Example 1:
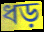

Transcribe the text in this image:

ধড়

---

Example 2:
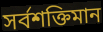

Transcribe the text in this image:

সর্বশক্তিমান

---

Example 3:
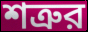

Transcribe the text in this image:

শত্রুর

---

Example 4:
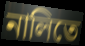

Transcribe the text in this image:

নালিতে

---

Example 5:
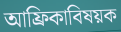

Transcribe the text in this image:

আফ্রিকাবিষয়ক